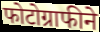
फोटोग्राफीने